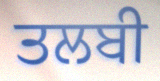
ਤਲਬੀ